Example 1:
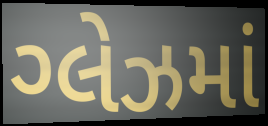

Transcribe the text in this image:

ગ્લેઝમાં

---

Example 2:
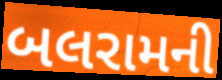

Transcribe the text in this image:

બલરામની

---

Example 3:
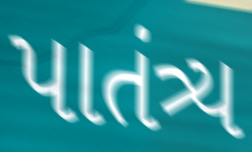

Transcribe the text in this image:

પાતંત્ર્ય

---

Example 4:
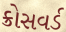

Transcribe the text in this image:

ક્રોસવર્ડ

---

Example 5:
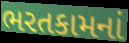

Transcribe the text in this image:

ભરતકામનાં